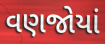
વણજોયાં